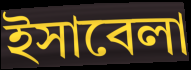
ইসাবেলা